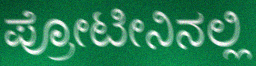
ಪ್ರೋಟೀನಿನಲ್ಲಿ